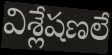
విశ్లేషణలే